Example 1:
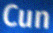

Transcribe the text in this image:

Cun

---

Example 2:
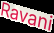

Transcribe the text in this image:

Ravani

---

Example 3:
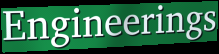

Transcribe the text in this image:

Engineerings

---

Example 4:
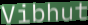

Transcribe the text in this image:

Vibhut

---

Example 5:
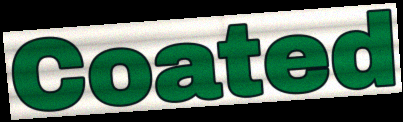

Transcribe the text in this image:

Coated